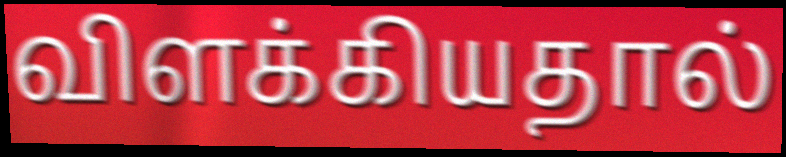
விளக்கியதால்